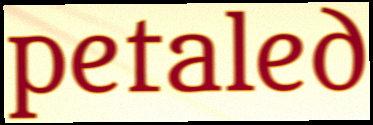
petaled